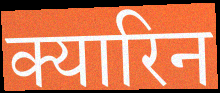
क्यारिन